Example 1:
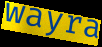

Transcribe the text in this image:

wayra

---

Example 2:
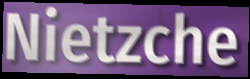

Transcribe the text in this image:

Nietzche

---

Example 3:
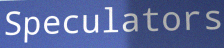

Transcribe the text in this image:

Speculators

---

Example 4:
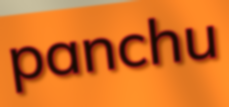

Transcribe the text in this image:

panchu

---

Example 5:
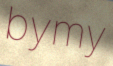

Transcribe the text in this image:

bymy